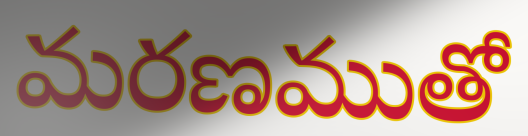
మరణముతో